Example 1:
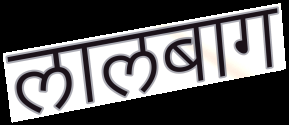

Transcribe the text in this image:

लालबाग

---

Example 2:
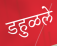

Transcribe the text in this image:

डहुळले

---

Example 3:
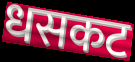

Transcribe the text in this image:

धसकट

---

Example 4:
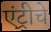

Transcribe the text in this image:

एंट्रीचे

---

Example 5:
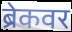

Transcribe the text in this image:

ब्रेकवर